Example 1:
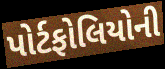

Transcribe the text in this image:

પોર્ટફોલિયોની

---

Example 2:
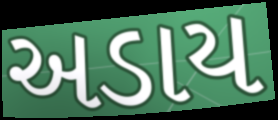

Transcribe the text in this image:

અડાય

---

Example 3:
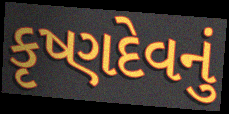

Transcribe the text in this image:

કૃષ્ણદેવનું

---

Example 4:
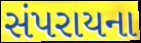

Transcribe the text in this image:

સંપરાયના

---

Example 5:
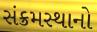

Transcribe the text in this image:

સંક્રમસ્થાનો